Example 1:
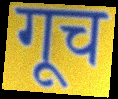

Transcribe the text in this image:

गूच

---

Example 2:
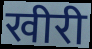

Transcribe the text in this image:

खीरी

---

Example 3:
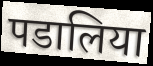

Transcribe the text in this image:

पडालिया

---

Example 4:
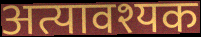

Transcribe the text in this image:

अत्यावश्यक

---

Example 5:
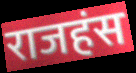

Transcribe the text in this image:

राजहंस